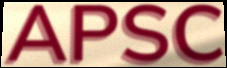
APSC